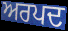
ਅਰਪਦ